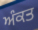
ਅੰਕਤ